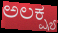
ಅಲಕ್ಷ್ಯ